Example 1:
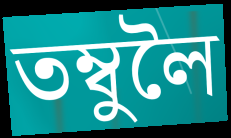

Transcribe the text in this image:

তম্বুলৈ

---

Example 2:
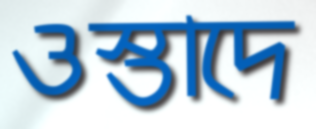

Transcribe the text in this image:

ওস্তাদে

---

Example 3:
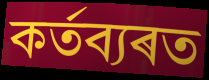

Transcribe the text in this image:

কৰ্তব্যৰত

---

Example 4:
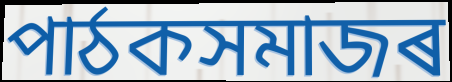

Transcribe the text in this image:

পাঠকসমাজৰ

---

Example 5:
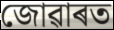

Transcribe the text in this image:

জোৱাৰত